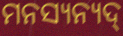
ମନସ୍ୟନ୍ୟଦ୍